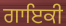
ਗਾਇਕੀ